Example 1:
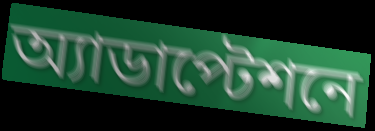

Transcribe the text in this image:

অ্যাডাপ্টেশনে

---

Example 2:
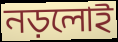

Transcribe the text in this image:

নড়লোই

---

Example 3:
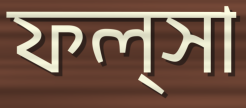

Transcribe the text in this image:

ফল্‌সা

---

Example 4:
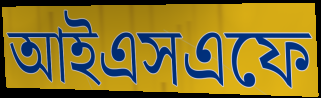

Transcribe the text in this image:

আইএসএফে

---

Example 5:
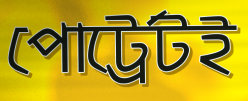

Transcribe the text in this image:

পোর্ট্রেটই